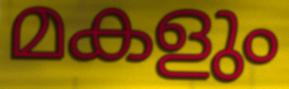
മകളും